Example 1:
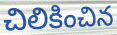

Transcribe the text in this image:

చిలికించిన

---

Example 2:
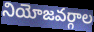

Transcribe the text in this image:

నియోజవర్గాల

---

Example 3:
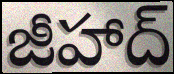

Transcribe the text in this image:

జీహాద్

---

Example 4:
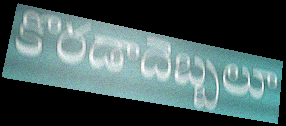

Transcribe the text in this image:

కొరడాదెబ్బలూ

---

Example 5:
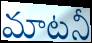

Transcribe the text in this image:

మాటనీ